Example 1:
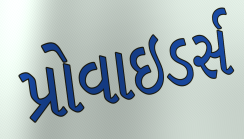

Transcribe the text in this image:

પ્રોવાઇડર્સ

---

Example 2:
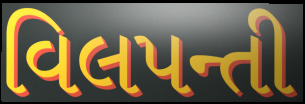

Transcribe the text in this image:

વિલપન્તી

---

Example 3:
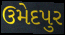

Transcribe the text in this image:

ઉમેદપુર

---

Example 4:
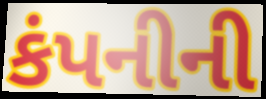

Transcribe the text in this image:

કંપનીની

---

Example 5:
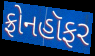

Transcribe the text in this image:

ફ્રોનહૉફર